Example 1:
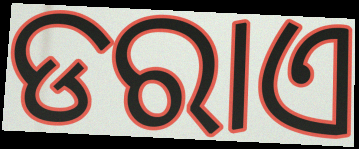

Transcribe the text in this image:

ଡରାଏ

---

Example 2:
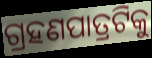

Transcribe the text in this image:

ଗ୍ରହଣପାତ୍ରଟିକୁ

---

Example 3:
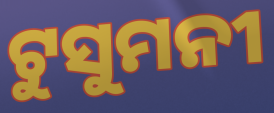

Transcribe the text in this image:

ଟୁସୁମନୀ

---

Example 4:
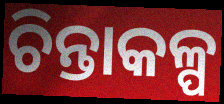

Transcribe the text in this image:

ଚିନ୍ତାକଳ୍ପ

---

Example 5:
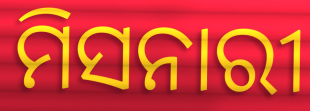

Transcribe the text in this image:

ମିସନାରୀ